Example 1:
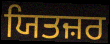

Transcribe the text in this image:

ਯਿਤਜ਼ਰ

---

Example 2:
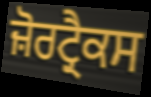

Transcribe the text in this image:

ਜ਼ੋਰਟ੍ਰੈਕਸ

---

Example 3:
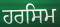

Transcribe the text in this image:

ਹਰਸਿਮ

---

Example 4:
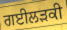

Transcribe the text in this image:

ਗਈਲੜਕੀ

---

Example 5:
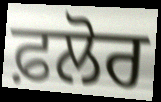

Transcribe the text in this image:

ਫ਼ਲੋਰ